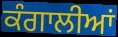
ਕੰਗਾਲੀਆਂ